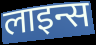
लाइन्स